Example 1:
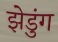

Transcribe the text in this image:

झेडुंग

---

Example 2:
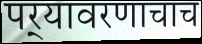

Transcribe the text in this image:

पर्यावरणाचाच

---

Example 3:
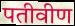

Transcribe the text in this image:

पतीवीण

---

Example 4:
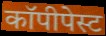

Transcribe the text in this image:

कॉपीपेस्ट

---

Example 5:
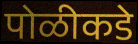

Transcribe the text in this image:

पोळीकडे